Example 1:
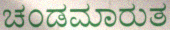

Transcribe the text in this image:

ಚಂಡಮಾರುತ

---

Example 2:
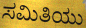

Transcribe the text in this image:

ಸಮಿತಿಯು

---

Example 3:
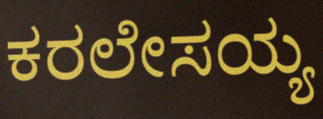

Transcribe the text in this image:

ಕರಲೇಸಯ್ಯ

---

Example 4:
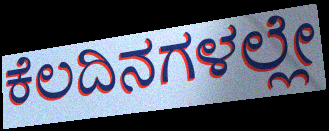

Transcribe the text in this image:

ಕೆಲದಿನಗಳಲ್ಲೇ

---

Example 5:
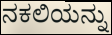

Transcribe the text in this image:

ನಕಲಿಯನ್ನು